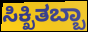
ಸಿಕ್ಖಿತಬ್ಬಾ